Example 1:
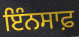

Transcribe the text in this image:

ਇੰਨਸਾਫ਼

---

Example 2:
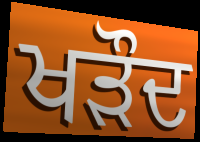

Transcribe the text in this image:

ਖੜੌਦ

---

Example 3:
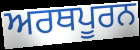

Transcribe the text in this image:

ਅਰਥਪੂਰਨ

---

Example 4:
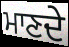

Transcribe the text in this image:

ਮਾਣਦੇ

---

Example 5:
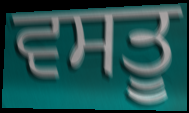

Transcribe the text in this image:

ਵਸਤੂ